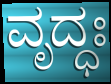
ವೃದ್ಧಃ